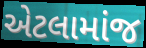
એટલામાંજ